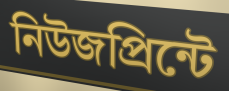
নিউজপ্রিন্টে